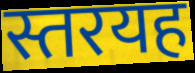
स्तरयह